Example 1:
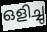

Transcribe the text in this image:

ഒളിച്ചു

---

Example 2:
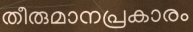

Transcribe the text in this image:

തീരുമാനപ്രകാരം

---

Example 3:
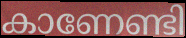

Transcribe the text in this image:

കാണേണ്ടി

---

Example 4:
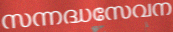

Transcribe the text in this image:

സന്നദ്ധസേവന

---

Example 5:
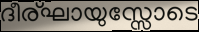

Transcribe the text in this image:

ദീര്ഘായുസ്സോടെ